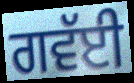
ਗਵੱਈ